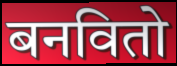
बनवितो